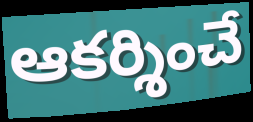
ఆకర్శించే